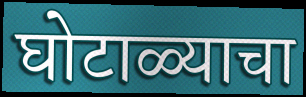
घोटाळ्याचा